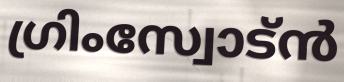
ഗ്രിംസ്വോട്ൻ